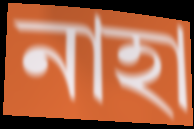
নাহা